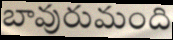
బావురుమంది